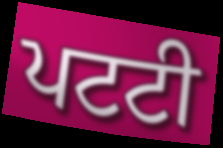
ਪਟਟੀ